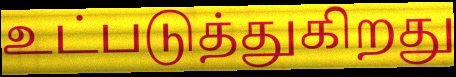
உட்படுத்துகிறது